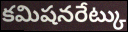
కమిషనరేట్కు